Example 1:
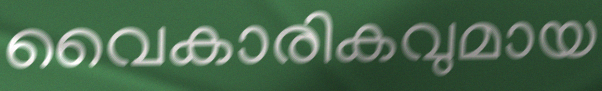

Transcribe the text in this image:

വൈകാരികവുമായ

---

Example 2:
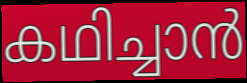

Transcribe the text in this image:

കഥിച്ചാൻ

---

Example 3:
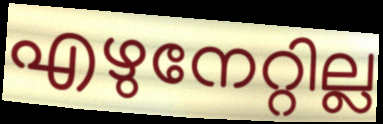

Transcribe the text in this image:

എഴുനേറ്റില്ല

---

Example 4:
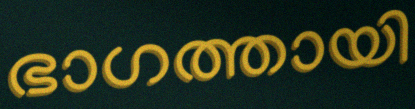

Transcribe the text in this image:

ഭാഗത്തായി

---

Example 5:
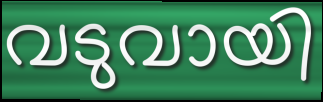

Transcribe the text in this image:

വടുവായി